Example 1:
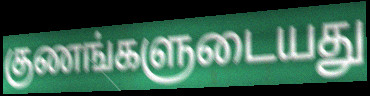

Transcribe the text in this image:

குணங்களுடையது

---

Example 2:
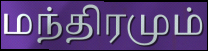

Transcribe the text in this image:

மந்திரமும்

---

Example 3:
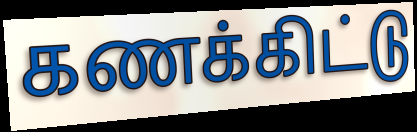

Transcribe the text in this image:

கணக்கிட்டு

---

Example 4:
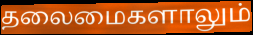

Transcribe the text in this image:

தலைமைகளாலும்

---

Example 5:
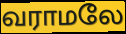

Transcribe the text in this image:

வராமலே